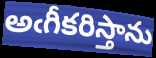
అఁగీకరిస్తాను